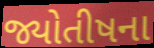
જ્યોતીષના